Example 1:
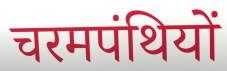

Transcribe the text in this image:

चरमपंथियों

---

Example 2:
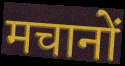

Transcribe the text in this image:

मचानों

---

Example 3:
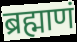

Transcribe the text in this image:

ब्रह्माणं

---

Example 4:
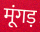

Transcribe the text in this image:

मूंगड़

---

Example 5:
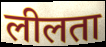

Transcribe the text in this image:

लीलता